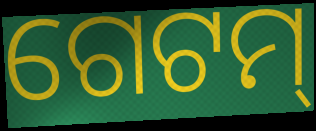
ଗେଟମ୍